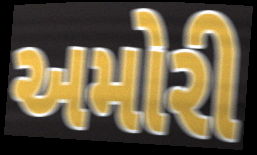
અમોરી